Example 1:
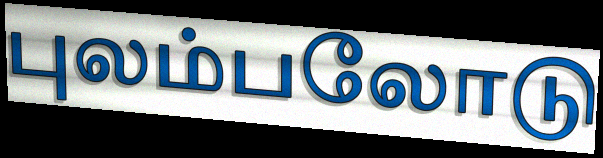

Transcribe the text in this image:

புலம்பலோடு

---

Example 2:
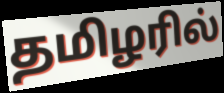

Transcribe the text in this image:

தமிழரில்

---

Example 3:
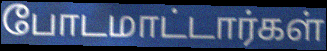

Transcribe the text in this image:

போடமாட்டார்கள்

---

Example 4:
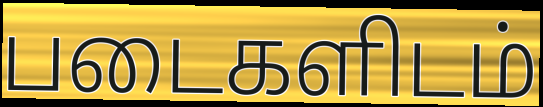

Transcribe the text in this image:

படைகளிடம்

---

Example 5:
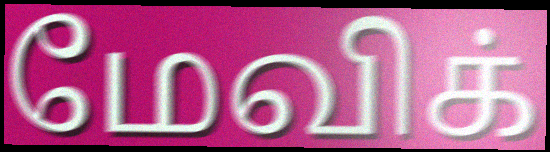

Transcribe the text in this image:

மேவிக்